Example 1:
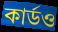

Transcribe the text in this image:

কার্ডও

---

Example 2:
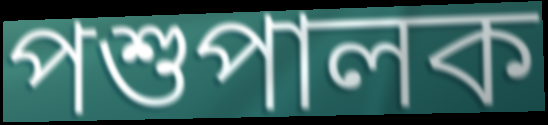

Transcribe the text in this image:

পশুপালক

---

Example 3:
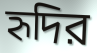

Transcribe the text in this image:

হৃদির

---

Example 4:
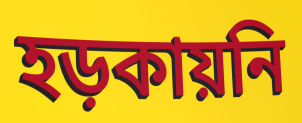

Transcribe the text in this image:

হড়কায়নি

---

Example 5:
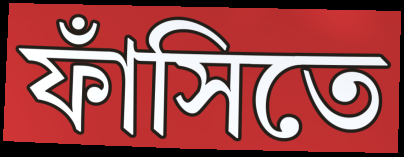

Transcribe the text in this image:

ফাঁসিতে